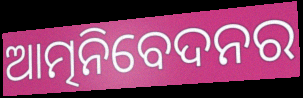
ଆତ୍ମନିବେଦନର